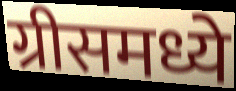
ग्रीसमध्ये